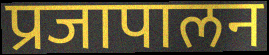
प्रजापालन